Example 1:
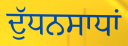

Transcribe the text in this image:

ਦੁੱਧਨਸਾਧਾਂ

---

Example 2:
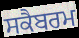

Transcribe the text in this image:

ਸਕੈਬਰਮ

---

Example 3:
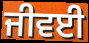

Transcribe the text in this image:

ਜੀਵਈ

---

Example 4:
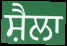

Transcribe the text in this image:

ਸ਼ੈਲਾ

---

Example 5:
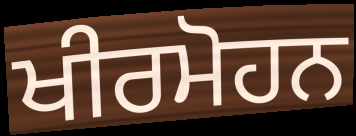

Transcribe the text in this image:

ਖੀਰਮੋਹਨ